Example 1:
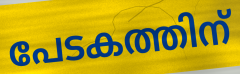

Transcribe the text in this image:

പേടകത്തിന്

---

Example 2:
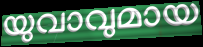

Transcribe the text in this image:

യുവാവുമായ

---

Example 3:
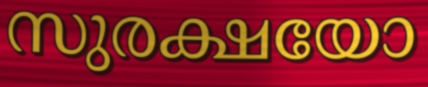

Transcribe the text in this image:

സുരക്ഷയോ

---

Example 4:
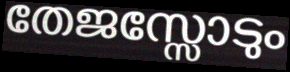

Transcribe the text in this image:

തേജസ്സോടും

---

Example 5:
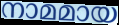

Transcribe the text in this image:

നാമമായ